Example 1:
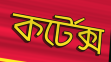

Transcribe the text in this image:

কর্টেক্স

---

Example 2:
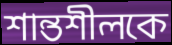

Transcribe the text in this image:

শান্তশীলকে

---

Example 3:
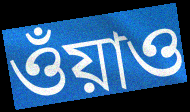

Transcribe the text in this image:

ওঁয়াও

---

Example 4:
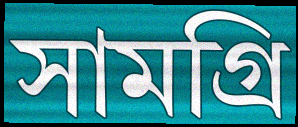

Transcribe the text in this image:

সামগ্রি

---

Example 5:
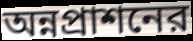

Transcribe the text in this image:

অন্নপ্রাশনের